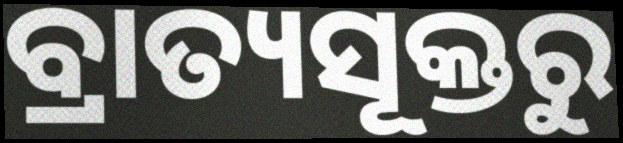
ବ୍ରାତ୍ୟସୂକ୍ତରୁ